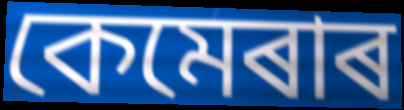
কেমেৰাৰ